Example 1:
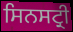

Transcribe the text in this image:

ਸਿਨਸਟ੍ਰੀ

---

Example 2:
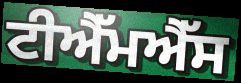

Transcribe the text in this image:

ਟੀਐੱਮਐੱਸ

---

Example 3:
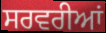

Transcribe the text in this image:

ਸਰਵਰੀਆਂ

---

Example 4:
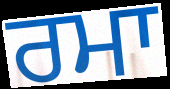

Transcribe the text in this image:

ਰਮਾ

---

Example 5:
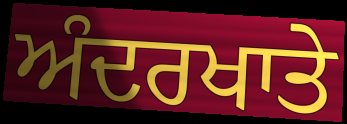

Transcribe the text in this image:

ਅੰਦਰਖਾਤੇ